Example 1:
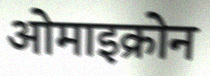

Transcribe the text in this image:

ओमाइक्रोन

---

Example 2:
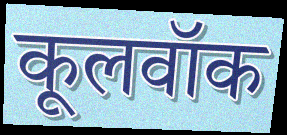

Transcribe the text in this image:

कूलवॉक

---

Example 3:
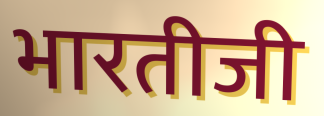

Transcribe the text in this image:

भारतीजी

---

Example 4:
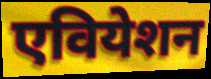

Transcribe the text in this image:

एवियेशन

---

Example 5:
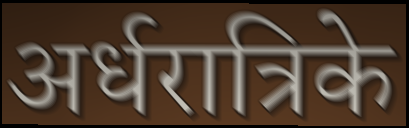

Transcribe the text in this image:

अर्धरात्रिके